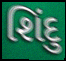
શિંદુ